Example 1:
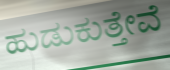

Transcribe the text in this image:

ಹುಡುಕುತ್ತೇವೆ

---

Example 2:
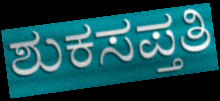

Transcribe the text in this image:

ಶುಕಸಪ್ತತಿ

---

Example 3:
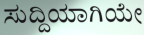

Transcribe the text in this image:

ಸುದ್ದಿಯಾಗಿಯೇ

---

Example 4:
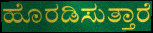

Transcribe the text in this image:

ಹೊರಡಿಸುತ್ತಾರೆ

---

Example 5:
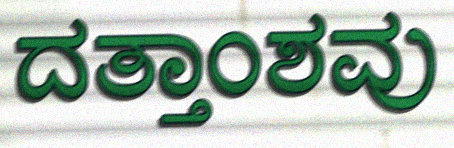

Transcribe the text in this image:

ದತ್ತಾಂಶವು